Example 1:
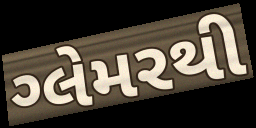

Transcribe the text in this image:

ગ્લેમરથી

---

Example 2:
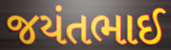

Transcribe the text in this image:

જયંતભાઈ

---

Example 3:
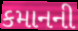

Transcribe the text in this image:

કમાનની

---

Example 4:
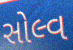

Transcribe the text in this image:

સોલ્વ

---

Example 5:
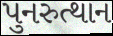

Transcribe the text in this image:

પુનરુત્થાન